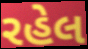
રહેલ